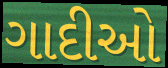
ગાદીઓ